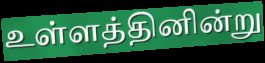
உள்ளத்தினின்று